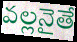
వల్లనైతే